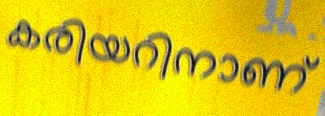
കരിയറിനാണ്